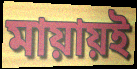
মায়ায়ই